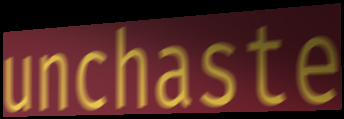
unchaste